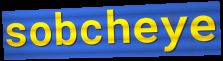
sobcheye